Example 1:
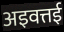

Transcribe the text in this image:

अइवत्तई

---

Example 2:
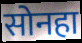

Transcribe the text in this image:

सोनहा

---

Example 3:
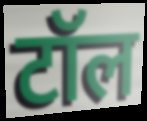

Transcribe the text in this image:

टॉल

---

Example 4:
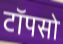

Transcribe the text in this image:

टॉपसो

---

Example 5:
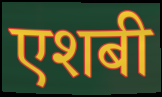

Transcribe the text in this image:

एशबी